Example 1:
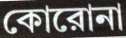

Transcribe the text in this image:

কোরোনা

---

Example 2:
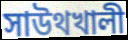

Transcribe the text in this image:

সাউথখালী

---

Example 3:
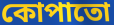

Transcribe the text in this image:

কোপাতো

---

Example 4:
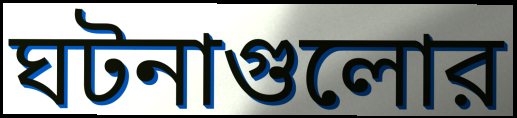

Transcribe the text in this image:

ঘটনাগুলোর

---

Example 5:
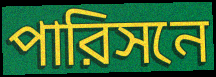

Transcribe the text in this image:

পারিসনে